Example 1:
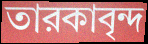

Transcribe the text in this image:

তারকাবৃন্দ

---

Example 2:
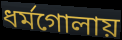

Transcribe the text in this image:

ধর্মগোলায়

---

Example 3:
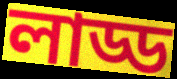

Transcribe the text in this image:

লাড্ড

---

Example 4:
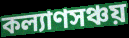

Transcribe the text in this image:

কল্যাণসঞ্চয়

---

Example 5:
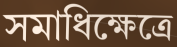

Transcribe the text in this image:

সমাধিক্ষেত্রে